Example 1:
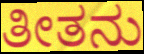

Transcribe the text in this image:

ತೀತನು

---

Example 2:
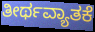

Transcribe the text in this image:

ತೀರ್ಥವ್ಯಾತಕೆ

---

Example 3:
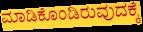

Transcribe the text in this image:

ಮಾಡಿಕೊಂಡಿರುವುದಕ್ಕೆ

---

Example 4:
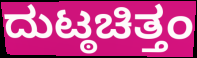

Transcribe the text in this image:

ದುಟ್ಠಚಿತ್ತಂ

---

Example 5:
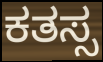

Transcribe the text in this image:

ಕತಸ್ಸ